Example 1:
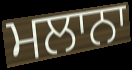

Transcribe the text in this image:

ਮਲਾਨਾ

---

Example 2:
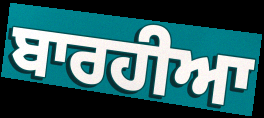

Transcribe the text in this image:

ਬਾਰਹੀਆ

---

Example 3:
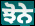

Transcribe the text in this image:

ਝੋਨੇ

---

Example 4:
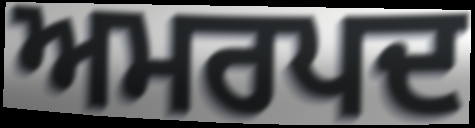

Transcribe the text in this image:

ਅਮਰਪਦ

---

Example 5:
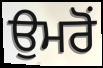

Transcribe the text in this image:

ਉਮਰੋਂ